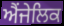
ਐਂਜੇਲਿਕ